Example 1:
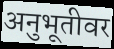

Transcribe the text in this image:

अनुभूतीवर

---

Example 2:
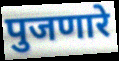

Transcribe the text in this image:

पुजणारे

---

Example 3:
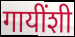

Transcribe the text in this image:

गायींशी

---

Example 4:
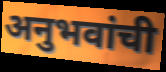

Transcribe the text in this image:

अनुभवांची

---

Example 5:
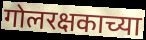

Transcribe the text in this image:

गोलरक्षकाच्या